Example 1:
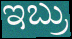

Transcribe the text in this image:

ಇಬ್ರು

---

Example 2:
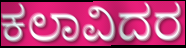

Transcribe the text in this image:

ಕಲಾವಿದರ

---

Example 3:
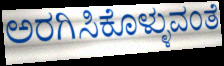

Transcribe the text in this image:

ಅರಗಿಸಿಕೊಳ್ಳುವಂತೆ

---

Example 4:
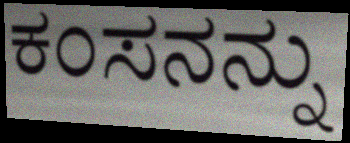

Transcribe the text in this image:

ಕಂಸನನ್ನು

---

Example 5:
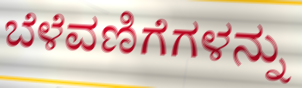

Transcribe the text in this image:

ಬೆಳೆವಣಿಗೆಗಳನ್ನು